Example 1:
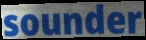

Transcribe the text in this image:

sounder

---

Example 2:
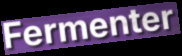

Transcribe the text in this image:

Fermenter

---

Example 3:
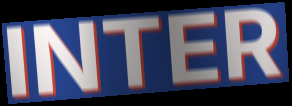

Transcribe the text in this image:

INTER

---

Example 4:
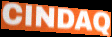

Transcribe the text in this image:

CINDAQ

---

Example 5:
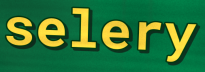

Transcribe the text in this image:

selery